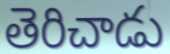
తెరిచాడు